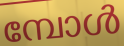
മ്പോൾ